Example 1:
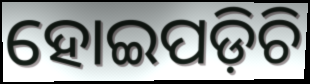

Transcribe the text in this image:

ହୋଇପଡ଼ିଚି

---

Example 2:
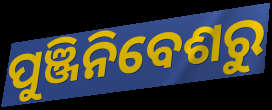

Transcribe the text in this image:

ପୁଞ୍ଜିନିବେଶରୁ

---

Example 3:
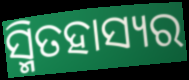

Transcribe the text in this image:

ସ୍ମିତହାସ୍ୟର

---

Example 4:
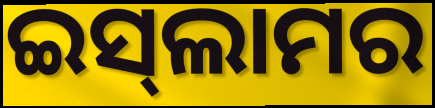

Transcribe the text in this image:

ଇସ୍‍ଲାମର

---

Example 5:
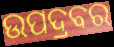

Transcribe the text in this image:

ଉପଦ୍ରବର